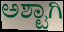
ಅಶ್ಟಾಗಿ